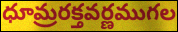
ధూమ్రరక్తవర్ణముగల